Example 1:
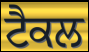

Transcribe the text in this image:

ਟੈਕਲ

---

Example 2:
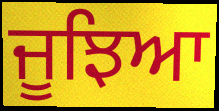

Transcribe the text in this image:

ਜੂਝਿਆ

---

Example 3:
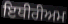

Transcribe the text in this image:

ਇਥੀਰੀਅਮ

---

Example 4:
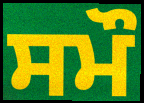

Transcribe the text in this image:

ਸਮੌ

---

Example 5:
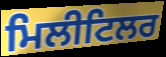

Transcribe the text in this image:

ਮਿਲੀਟਿਲਰ